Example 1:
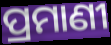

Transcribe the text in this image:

ପ୍ରମାଣୀ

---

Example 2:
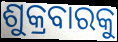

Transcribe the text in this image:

ଶୁକ୍ରବାରକୁ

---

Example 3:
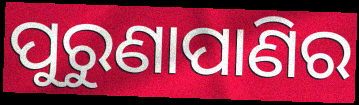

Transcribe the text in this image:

ପୁରୁଣାପାଣିର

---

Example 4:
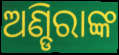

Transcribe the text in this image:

ଅଣ୍ଡିରାଙ୍କ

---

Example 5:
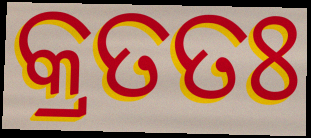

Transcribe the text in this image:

କ୍ରତତଃ